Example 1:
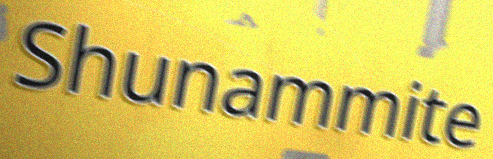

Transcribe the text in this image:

Shunammite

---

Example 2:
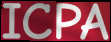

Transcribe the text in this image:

ICPA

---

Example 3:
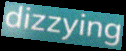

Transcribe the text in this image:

dizzying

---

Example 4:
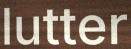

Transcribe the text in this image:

lutter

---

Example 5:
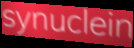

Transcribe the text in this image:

synuclein